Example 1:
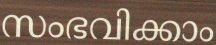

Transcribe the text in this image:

സംഭവിക്കാം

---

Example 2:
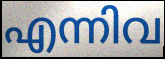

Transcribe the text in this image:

എന്നിവ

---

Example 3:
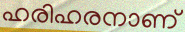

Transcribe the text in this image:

ഹരിഹരനാണ്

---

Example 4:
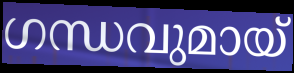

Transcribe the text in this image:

ഗന്ധവുമായ്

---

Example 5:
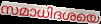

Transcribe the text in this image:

സമാധിദശയെ